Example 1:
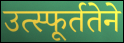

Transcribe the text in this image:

उत्स्फूर्ततेने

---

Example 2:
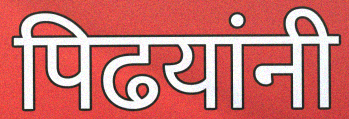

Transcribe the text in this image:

पिढयांनी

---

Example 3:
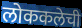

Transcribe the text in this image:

लोककलेची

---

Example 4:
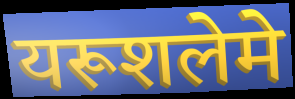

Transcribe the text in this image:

यरूशलेमे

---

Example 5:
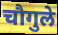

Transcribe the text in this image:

चौगुले